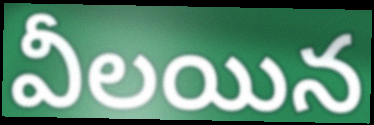
వీలయిన